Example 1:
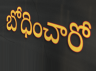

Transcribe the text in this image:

బోధించారో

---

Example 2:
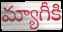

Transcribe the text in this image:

మ్యాగీకి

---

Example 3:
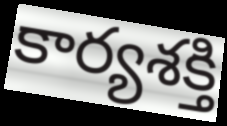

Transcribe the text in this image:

కార్యశక్తి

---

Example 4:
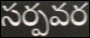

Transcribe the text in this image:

సర్పవర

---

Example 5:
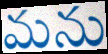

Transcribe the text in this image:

మను